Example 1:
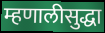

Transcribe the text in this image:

म्हणालीसुद्धा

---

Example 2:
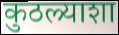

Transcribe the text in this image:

कुठल्याशा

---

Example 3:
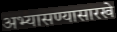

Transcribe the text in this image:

अभ्यासण्यासारखे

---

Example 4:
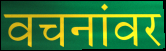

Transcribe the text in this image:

वचनांवर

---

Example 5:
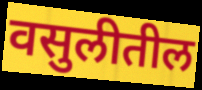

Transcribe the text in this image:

वसुलीतील